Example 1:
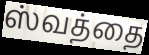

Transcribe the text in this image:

ஸ்வத்தை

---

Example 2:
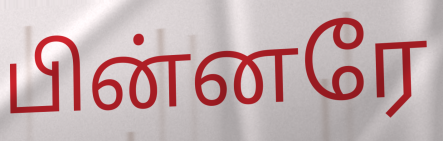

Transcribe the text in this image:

பின்னரே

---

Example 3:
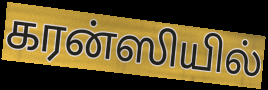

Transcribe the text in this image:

கரன்ஸியில்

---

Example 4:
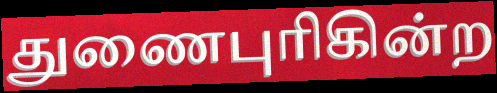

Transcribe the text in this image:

துணைபுரிகின்ற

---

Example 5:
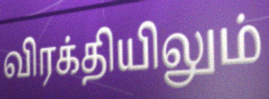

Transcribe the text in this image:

விரக்தியிலும்